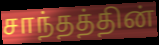
சாந்தத்தின்